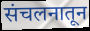
संचलनातून